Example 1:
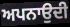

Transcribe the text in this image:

ਅਪਨਾਉਦੀ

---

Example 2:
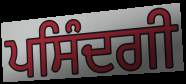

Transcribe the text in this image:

ਪਸਿੰਦਗੀ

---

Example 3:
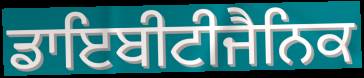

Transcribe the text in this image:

ਡਾਇਬੀਟੀਜੈਨਿਕ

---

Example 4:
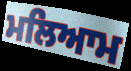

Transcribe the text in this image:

ਮਲਿਆਮ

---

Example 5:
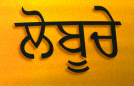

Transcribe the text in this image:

ਲੋਬੂਚੇ